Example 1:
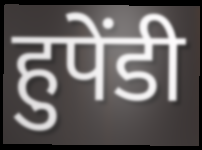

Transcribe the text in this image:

हुपेंडी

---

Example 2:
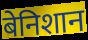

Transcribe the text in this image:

बेनिशान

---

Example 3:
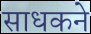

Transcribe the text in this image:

साधकने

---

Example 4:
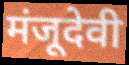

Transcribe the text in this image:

मंजूदेवी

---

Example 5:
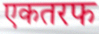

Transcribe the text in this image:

एकतरफ